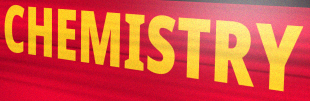
CHEMISTRY